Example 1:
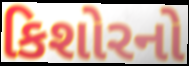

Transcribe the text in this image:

કિશોરનો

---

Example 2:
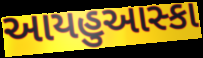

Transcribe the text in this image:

આયહુઆસ્કા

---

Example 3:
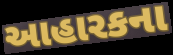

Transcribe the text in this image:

આહારકના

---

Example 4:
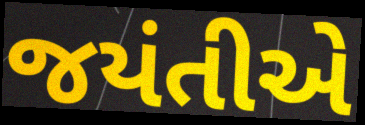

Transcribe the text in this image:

જયંતીએ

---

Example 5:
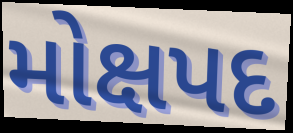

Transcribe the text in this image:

મોક્ષપદ